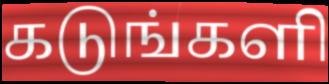
கடுங்களி